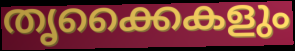
തൃക്കൈകളും